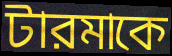
টারমাকে